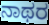
ನಾಥರ